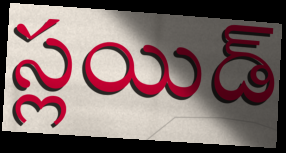
స్లయిడ్